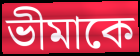
ভীমাকে